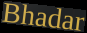
Bhadar